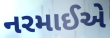
નરમાઈએ